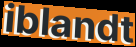
iblandt